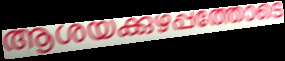
ആശയക്കുഴപ്പത്തോടെ